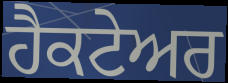
ਹੈਕਟੇਅਰ